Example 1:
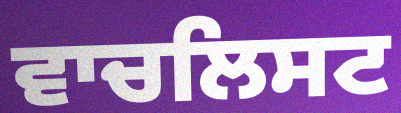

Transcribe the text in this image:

ਵਾਚਲਿਸਟ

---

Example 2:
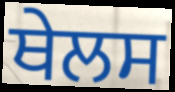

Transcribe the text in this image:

ਥੇਲਸ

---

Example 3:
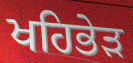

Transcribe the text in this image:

ਖਹਿਭੇੜ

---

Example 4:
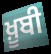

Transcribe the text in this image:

ਖ਼ੂਬੀ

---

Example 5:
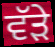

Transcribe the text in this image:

ਵੱਡ਼ੇ